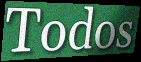
Todos